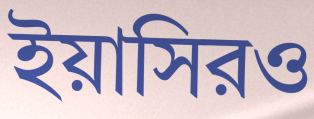
ইয়াসিরও